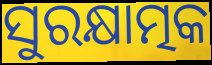
ସୁରକ୍ଷାତ୍ମକ